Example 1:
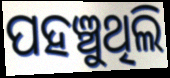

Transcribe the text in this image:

ପହଞ୍ଚୁଥିଲି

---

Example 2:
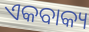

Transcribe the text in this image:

ଏକବାକ୍ୟ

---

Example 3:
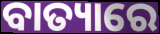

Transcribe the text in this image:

ବାତ୍ୟାରେ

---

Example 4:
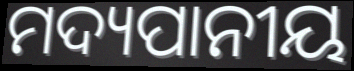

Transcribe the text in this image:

ମଦ୍ୟପାନୀୟ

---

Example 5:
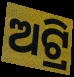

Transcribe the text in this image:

ଅଟ୍ରି